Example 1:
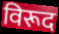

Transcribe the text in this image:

विरूद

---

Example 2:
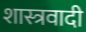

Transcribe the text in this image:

शास्त्रवादी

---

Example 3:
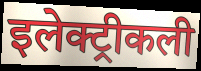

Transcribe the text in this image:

इलेक्ट्रीकली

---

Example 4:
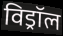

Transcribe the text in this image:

विड्रॉल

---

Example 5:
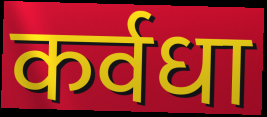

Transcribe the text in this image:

कर्वधा